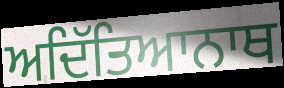
ਅਦਿੱਤਿਆਨਾਥ